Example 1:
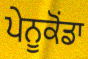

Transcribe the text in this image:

ਪੇਨੂਕੋਂਡਾ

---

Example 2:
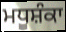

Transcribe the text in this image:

ਮਧੂਸ਼ੰਕਾ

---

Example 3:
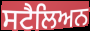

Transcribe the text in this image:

ਸਟੈਲਿਅਨ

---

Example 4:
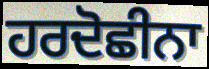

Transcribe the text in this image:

ਹਰਦੋਛੀਨਾ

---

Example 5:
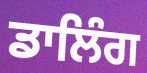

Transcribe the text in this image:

ਡਾਲਿੰਗ